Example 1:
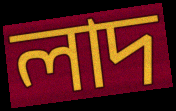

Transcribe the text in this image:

লাদ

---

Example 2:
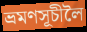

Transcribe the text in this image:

ভ্ৰমণসূচীলৈ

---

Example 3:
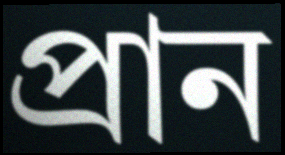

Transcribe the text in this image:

প্ৰান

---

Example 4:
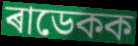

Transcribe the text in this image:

ৰাডেকক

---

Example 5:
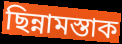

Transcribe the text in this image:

ছিন্নামস্তাক